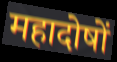
महादोषों